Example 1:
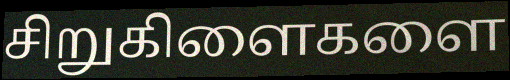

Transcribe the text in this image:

சிறுகிளைகளை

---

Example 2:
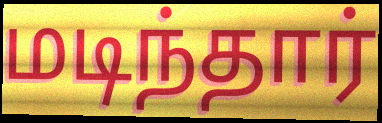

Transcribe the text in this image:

மடிந்தார்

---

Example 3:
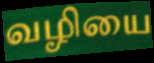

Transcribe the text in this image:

வழியை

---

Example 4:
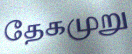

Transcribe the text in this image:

தேகமுறு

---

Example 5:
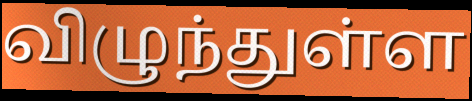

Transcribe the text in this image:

விழுந்துள்ள